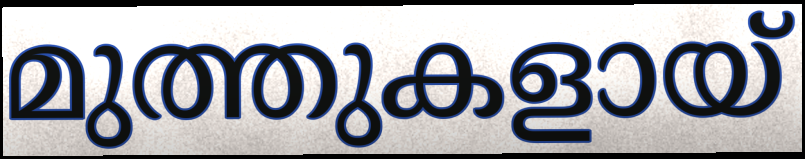
മുത്തുകളായ്